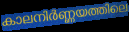
കാലനിർണ്ണയത്തിലെ